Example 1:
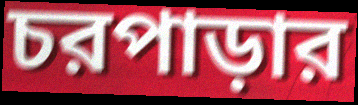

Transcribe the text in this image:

চরপাড়ার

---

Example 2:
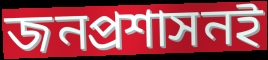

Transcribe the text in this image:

জনপ্রশাসনই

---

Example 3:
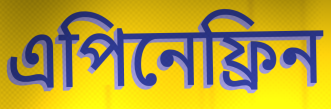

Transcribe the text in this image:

এপিনেফ্রিন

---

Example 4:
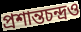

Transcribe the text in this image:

প্রশান্তচন্দ্রও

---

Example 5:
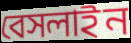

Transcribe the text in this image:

বেসলাইন